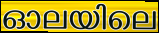
ഓലയിലെ